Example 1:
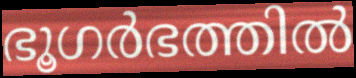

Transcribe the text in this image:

ഭൂഗർഭത്തിൽ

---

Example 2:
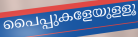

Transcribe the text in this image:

പൈപ്പുകളേയുളളൂ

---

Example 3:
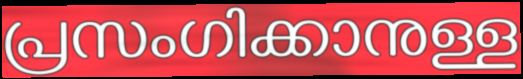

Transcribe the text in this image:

പ്രസംഗിക്കാനുള്ള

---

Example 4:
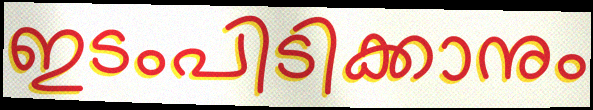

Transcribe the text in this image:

ഇടംപിടിക്കാനും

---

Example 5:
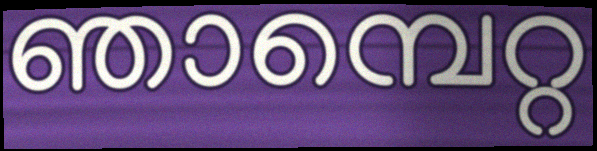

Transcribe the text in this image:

ഞാമ്പെറ്റ